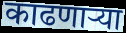
काढणार्‍या